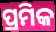
ପ୍ରମିକ